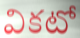
వికటో